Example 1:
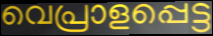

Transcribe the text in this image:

വെപ്രാളപ്പെട്ട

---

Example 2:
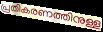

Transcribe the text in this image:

പ്രതികരണത്തിനുള്ള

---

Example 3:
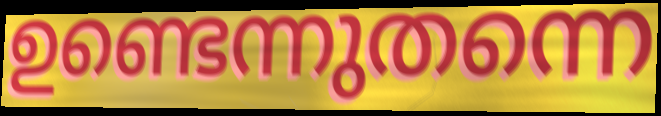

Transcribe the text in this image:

ഉണ്ടെന്നുതന്നെ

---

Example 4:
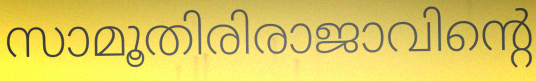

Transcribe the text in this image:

സാമൂതിരിരാജാവിന്റെ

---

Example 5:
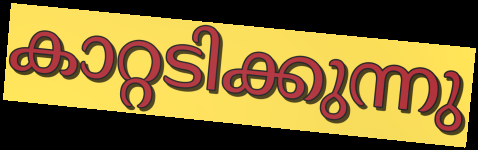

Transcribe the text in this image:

കാറ്റടിക്കുന്നു